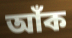
আঁক